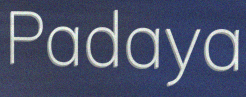
Padaya